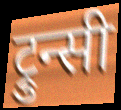
ट्रुन्सी